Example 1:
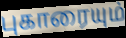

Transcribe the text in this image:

புகாரையும்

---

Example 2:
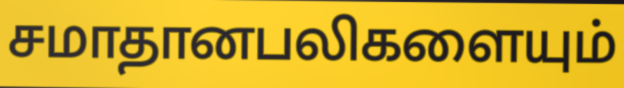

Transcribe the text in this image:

சமாதானபலிகளையும்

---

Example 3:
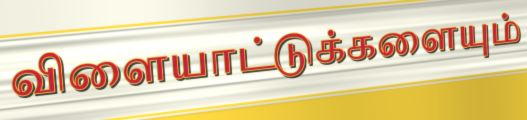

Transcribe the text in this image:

விளையாட்டுக்களையும்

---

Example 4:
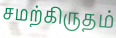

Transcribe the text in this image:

சமற்கிருதம்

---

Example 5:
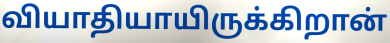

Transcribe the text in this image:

வியாதியாயிருக்கிறான்